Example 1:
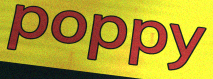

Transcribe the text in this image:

poppy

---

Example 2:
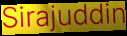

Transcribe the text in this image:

Sirajuddin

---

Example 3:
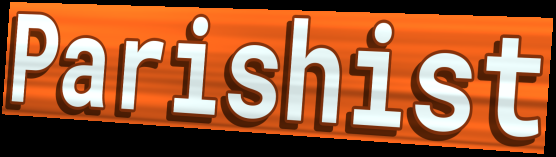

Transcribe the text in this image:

Parishist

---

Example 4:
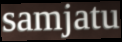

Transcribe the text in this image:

samjatu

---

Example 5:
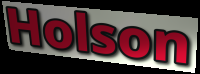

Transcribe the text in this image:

Holson